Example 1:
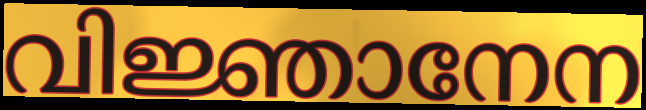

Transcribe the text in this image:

വിജ്ഞാനേന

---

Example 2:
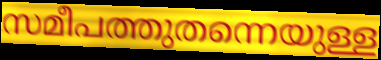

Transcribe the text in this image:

സമീപത്തുതന്നെയുള്ള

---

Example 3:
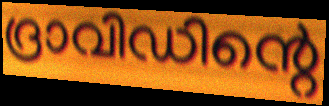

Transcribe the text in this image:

ദ്രാവിഡിന്റെ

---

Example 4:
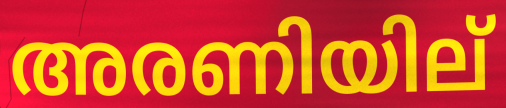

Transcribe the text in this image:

അരണിയില്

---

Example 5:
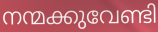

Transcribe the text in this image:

നന്മക്കുവേണ്ടി